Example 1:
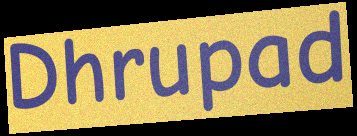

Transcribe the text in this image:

Dhrupad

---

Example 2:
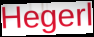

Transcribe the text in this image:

Hegerl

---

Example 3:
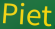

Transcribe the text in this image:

Piet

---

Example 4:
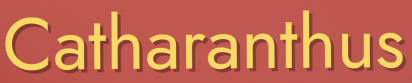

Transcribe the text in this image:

Catharanthus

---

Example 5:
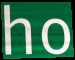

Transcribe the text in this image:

ho